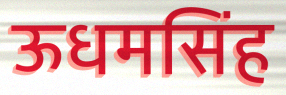
ऊधमसिंह